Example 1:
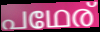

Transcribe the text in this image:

പഥേര്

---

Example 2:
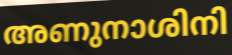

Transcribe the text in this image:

അണുനാശിനി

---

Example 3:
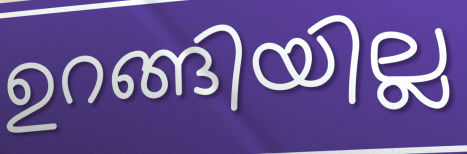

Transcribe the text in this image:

ഉറങ്ങിയില്ല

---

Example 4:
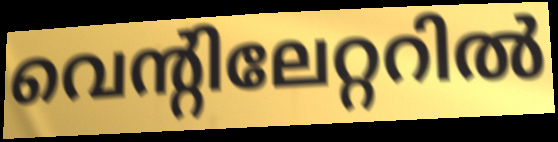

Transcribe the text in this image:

വെന്റിലേറ്ററിൽ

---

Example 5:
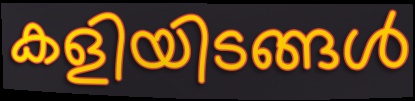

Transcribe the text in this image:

കളിയിടങ്ങൾ